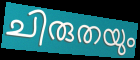
ചിരുതയും